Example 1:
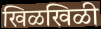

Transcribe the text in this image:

खिळखिळी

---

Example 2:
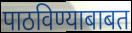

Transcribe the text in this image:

पाठविण्याबाबत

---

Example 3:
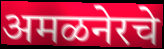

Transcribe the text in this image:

अमळनेरचे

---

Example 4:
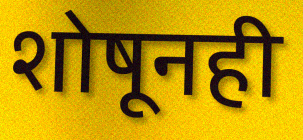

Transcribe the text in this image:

शोषूनही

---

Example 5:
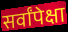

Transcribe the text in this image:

सर्वांपेक्षा